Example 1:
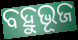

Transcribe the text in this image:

ବହୁଭୂଜ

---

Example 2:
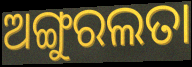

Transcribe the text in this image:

ଅଙ୍ଗୁରଲତା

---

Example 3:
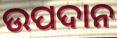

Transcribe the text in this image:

ଉପଦାନ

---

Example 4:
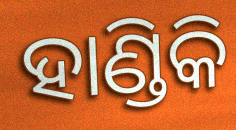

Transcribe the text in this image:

ହାଣ୍ଡିକି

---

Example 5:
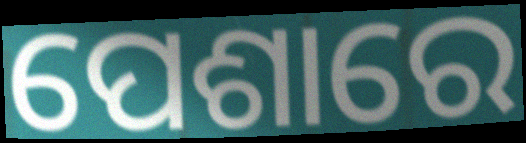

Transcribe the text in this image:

ପେଶାରେ